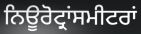
ਨਿਊਰੋਟ੍ਰਾਂਸਮੀਟਰਾਂ